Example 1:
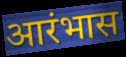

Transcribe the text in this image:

आरंभास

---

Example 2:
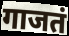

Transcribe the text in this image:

गाजतं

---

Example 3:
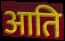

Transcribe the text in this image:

आति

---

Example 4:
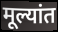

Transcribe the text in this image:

मूल्यांत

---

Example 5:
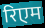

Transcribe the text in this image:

रिएम